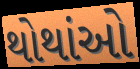
થોથાંઓ